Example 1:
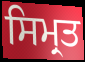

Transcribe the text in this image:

ਸਿਮ੍ਰਤ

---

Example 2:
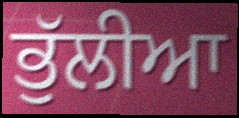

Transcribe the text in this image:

ਭੁੱਲੀਆ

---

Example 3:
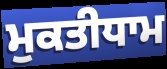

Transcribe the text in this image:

ਮੁਕਤੀਧਾਮ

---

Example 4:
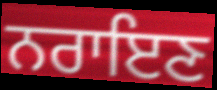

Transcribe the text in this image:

ਨਰਾਇਣ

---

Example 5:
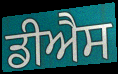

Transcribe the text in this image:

ਡੀਐਸ